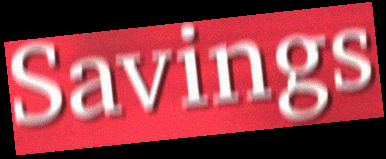
Savings